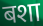
बशा